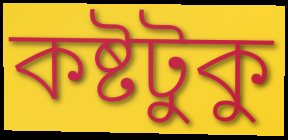
কষ্টটুকু